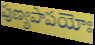
పుణ్యపాపయోః